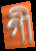
গী